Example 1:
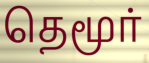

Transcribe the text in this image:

தெமூர்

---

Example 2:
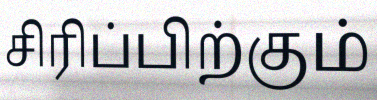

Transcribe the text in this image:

சிரிப்பிற்கும்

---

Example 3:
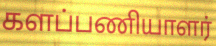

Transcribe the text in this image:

களப்பணியாளர்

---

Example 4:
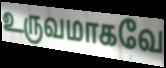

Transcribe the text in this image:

உருவமாகவே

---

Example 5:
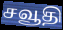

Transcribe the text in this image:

சவூதி